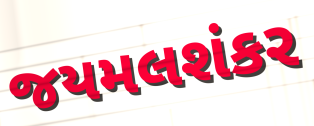
જયમલશંકર